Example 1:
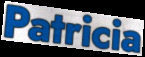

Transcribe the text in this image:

Patricia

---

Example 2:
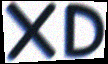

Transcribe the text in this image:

XD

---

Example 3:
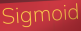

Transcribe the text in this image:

Sigmoid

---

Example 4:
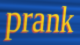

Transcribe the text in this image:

prank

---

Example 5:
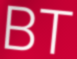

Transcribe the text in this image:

BT